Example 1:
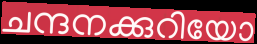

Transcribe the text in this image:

ചന്ദനക്കുറിയോ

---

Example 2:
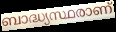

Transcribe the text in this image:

ബാദ്ധ്യസ്ഥരാണ്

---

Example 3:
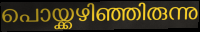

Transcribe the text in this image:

പൊയ്ക്കഴിഞ്ഞിരുന്നു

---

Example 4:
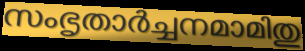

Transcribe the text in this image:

സംഭൃതാർച്ചനമാമിതു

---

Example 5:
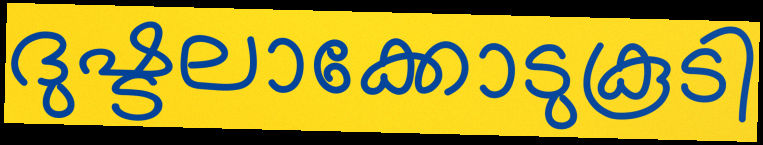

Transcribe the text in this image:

ദുഷ്ടലാക്കോടുകൂടി